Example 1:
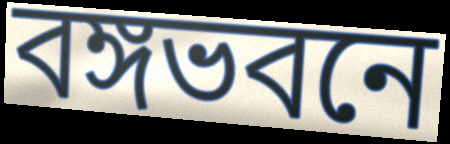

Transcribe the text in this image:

বঙ্গভবনে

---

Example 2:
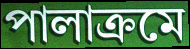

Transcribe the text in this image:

পালাক্রমে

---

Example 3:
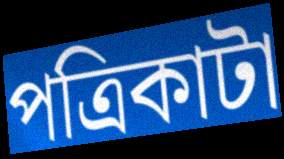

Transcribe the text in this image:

পত্রিকাটা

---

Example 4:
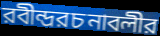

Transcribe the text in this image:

রবীন্দ্ররচনাবলীর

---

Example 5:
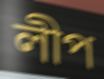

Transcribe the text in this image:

লীপ